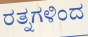
ರತ್ನಗಳಿಂದ